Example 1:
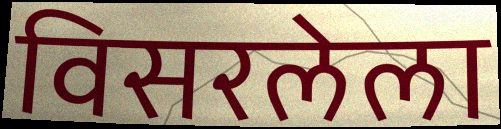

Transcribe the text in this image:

विसरलेला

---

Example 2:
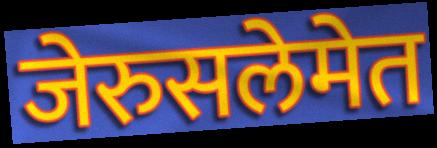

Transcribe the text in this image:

जेरुसलेमेत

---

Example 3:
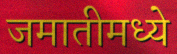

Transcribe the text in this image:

जमातीमध्ये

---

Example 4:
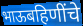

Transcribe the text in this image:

भाऊबहिणींचे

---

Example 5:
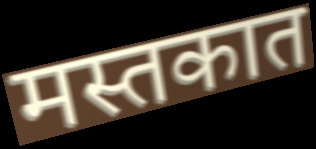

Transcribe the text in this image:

मस्तकात